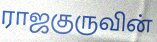
ராஜகுருவின்